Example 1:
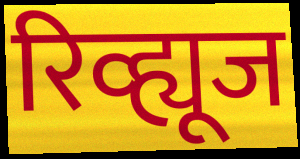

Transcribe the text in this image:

रिव्ह्यूज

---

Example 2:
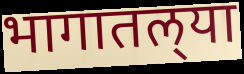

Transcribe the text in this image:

भागातल्या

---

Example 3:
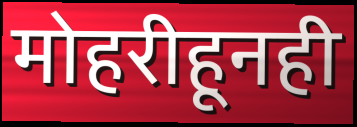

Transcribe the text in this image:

मोहरीहूनही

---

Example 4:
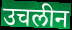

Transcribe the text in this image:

उचलीन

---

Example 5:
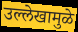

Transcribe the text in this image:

उल्लेखामुळे